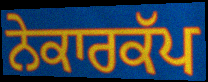
ਨੇਕਾਰਕੱਪ